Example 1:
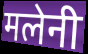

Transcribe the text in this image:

मलेनी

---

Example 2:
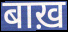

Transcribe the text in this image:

बाख़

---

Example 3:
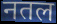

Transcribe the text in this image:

नतल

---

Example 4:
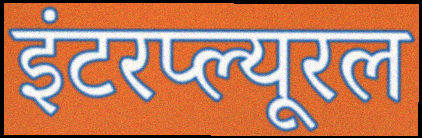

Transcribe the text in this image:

इंटरप्ल्यूरल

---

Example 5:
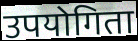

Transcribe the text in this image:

उपयोगिता